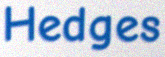
Hedges